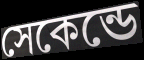
সেকেন্ডে